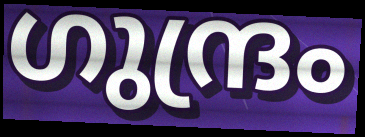
ഗുന്ദ്രം